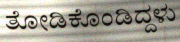
ತೋಡಿಕೊಂಡಿದ್ದಳು